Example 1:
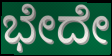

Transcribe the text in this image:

ಭೇದೇ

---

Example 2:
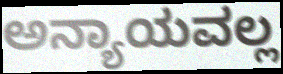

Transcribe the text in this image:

ಅನ್ಯಾಯವಲ್ಲ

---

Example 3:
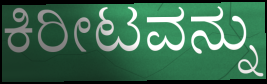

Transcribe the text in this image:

ಕಿರೀಟವನ್ನು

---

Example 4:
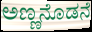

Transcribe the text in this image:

ಅಣ್ಣನೊಡನೆ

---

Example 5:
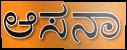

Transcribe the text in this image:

ಆಸನಾ